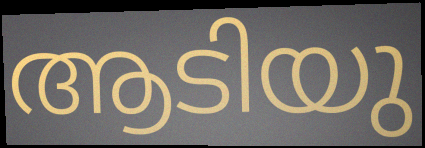
ആടിയു